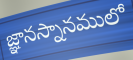
జ్ఞానస్నానములో